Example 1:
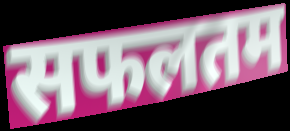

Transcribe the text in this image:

सफलतम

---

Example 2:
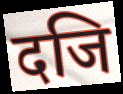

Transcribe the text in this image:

दजि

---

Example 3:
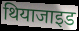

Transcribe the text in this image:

थियाजाइड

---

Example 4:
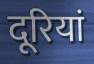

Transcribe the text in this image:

दूरियां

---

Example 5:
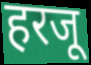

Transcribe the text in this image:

हरजू